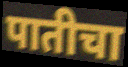
पातीचा